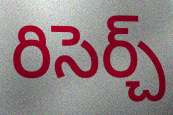
రిసెర్చ్